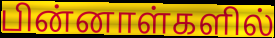
பின்னாள்களில்